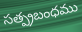
సత్ప్రబంధము